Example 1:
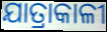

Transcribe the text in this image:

ଯାତ୍ରାକାଳୀ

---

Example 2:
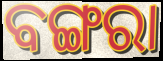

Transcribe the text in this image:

ବଙ୍ଗରା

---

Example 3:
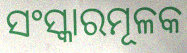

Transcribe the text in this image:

ସଂସ୍କାରମୂଳକ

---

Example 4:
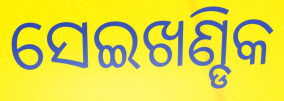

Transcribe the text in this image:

ସେଇଖଣ୍ଡିକ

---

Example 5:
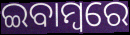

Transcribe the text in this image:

ଇବାମ୍ବରେ